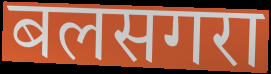
बलसगरा